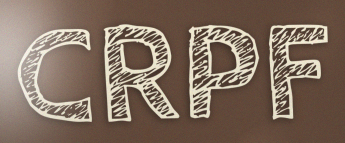
CRPF